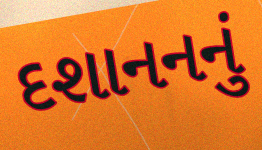
દશાનનનું